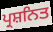
ਪ੍ਰਸ਼ਨਿਤ